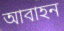
আবাহন